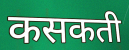
कसकती